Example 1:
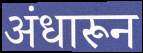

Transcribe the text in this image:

अंधारून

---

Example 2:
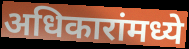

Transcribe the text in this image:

अधिकारांमध्ये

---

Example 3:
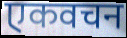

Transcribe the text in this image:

एकवचन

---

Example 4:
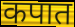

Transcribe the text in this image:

कपात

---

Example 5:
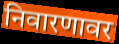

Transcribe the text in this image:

निवारणावर